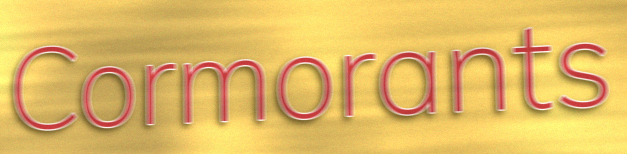
Cormorants